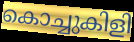
കൊച്ചുകിളി